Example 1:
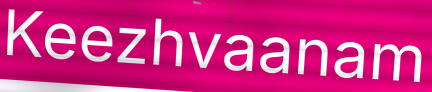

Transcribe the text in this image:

Keezhvaanam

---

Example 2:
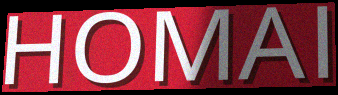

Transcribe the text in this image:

HOMAI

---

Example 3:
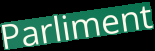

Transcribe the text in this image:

Parliment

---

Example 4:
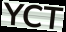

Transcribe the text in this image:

YCT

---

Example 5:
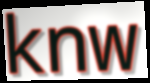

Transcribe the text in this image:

knw